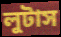
লুটাস